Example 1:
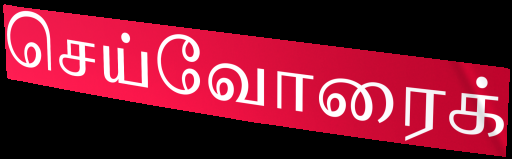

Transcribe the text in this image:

செய்வோரைக்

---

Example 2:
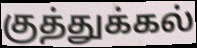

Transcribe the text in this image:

குத்துக்கல்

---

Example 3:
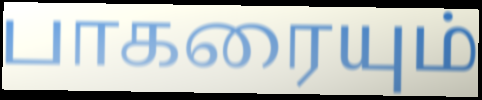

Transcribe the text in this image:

பாகரையும்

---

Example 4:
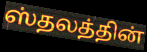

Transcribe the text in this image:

ஸ்தலத்தின்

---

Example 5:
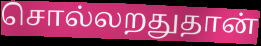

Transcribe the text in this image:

சொல்லறதுதான்